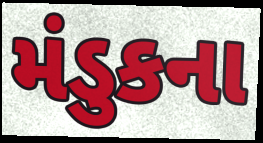
મંડુકના